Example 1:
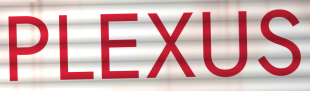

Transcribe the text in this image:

PLEXUS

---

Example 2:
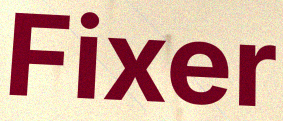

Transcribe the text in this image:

Fixer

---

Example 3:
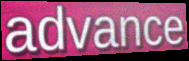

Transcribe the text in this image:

advance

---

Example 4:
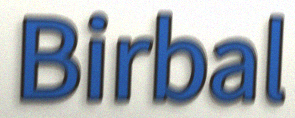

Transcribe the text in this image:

Birbal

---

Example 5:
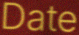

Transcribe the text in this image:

Date